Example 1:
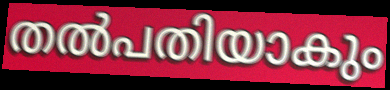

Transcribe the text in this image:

തൽപതിയാകും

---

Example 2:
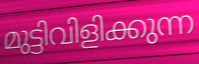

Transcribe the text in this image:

മുട്ടിവിളിക്കുന്ന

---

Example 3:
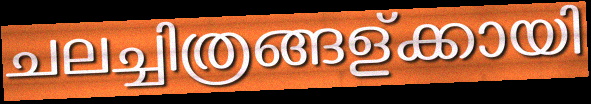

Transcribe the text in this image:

ചലച്ചിത്രങ്ങള്ക്കായി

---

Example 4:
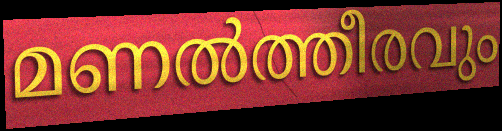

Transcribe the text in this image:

മണൽത്തീരവും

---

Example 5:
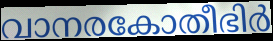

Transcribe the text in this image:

വാനരകോതീഭിർ